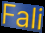
Fali